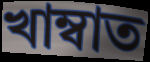
খাম্বাত